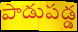
పాడుపడ్డ